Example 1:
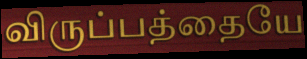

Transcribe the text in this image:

விருப்பத்தையே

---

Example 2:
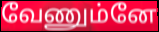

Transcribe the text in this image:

வேணும்னே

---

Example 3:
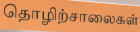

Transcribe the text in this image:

தொழிற்சாலைகள்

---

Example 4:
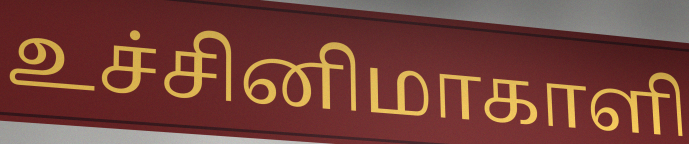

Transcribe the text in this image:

உச்சினிமாகாளி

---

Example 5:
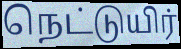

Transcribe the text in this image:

நெட்டுயிர்